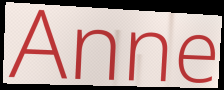
Anne